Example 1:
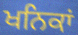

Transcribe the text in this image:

ਖਨਿਕਾਂ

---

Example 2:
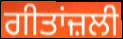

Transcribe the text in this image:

ਗੀਤਾਂਜ਼ਲੀ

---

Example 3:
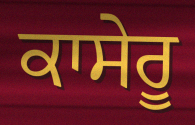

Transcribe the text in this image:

ਕਾਸੇਰੂ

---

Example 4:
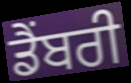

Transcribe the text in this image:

ਡੈਂਬਰੀ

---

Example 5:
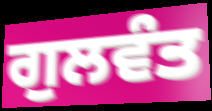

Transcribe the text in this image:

ਗੁਲਵੰਤ